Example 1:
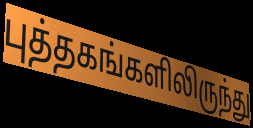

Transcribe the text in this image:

புத்தகங்களிலிருந்து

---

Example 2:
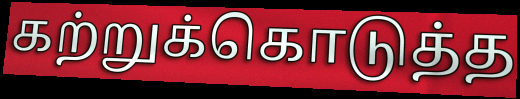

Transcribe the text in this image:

கற்றுக்கொடுத்த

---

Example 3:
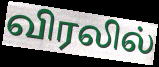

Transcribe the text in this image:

விரலில்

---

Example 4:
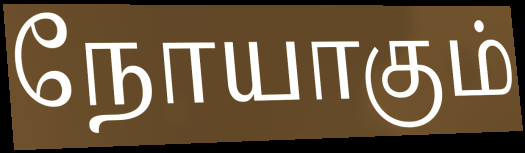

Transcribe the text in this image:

நோயாகும்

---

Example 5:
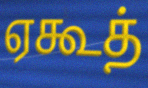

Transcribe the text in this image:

ஏகூத்